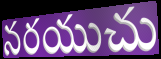
నరయుచు